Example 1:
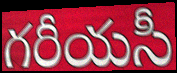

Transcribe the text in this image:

గరీయసీ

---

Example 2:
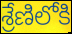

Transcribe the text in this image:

శ్రేణిలోకి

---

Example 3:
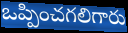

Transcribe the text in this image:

ఒప్పించగలిగారు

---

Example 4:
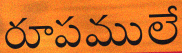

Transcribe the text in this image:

రూపములే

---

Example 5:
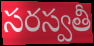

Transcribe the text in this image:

సరస్వతీ